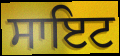
ਸਾਇਟ